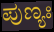
ಪುಣ್ಯಃ